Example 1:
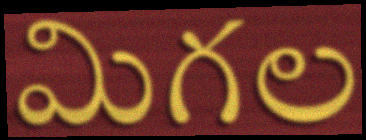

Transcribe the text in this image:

మిగల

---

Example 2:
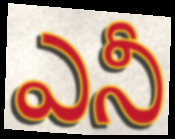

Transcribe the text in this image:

ఎనీ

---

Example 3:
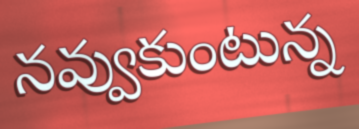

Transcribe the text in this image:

నవ్వుకుంటున్న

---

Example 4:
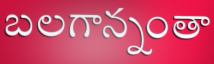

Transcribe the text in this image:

బలగాన్నంతా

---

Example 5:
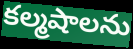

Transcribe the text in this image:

కల్మషాలను